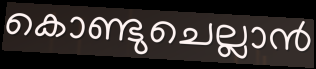
കൊണ്ടുചെല്ലാൻ